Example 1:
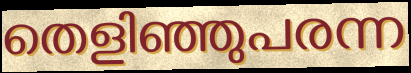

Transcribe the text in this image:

തെളിഞ്ഞുപരന്ന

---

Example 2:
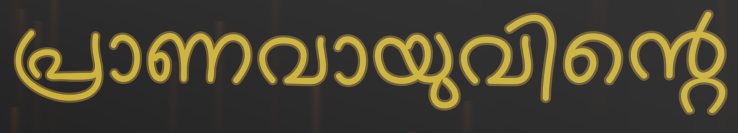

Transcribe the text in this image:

പ്രാണവായുവിന്റെ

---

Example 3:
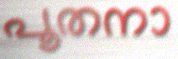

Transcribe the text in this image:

പൂതനാ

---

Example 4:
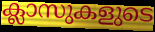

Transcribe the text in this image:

ക്ലാസുകളുടെ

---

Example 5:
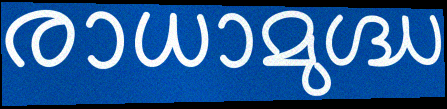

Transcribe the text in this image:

രാധാമുഗ്ദ്ധ